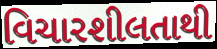
વિચારશીલતાથી